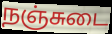
நஞ்சுடை